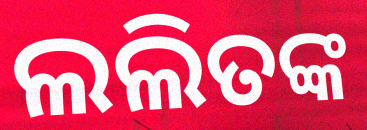
ଲଲିତଙ୍କ